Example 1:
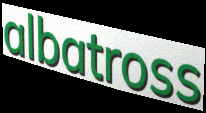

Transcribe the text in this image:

albatross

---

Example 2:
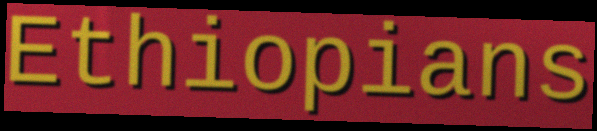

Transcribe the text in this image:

Ethiopians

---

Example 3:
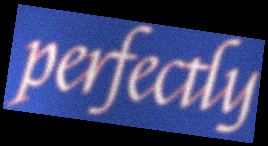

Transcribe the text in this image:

perfectly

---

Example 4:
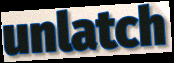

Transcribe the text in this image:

unlatch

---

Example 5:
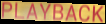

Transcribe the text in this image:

PLAYBACK